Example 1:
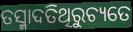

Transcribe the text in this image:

ତସ୍ମାଦତିଥିରୁଚ୍ୟତେ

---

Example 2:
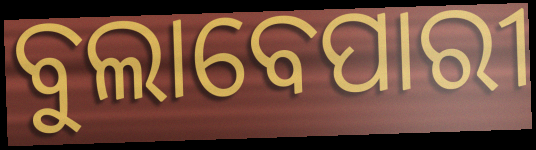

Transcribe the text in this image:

ବୁଲାବେପାରୀ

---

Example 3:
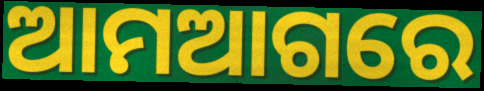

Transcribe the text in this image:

ଆମଆଗରେ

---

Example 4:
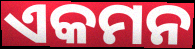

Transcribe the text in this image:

ଏକମନ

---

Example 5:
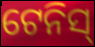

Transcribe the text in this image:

ଟେନିସ୍